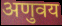
अणुवय